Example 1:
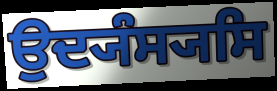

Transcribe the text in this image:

ਉਦ੍ਯੰਸ੍ਯਸਿ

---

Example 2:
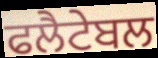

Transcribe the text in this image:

ਫਲੈਟੇਬਲ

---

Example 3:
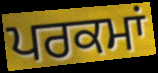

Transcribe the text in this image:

ਪਰਕਮਾਂ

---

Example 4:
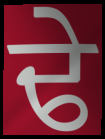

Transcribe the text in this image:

ਢੇ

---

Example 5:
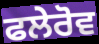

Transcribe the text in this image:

ਫਲੇਰੋਵ